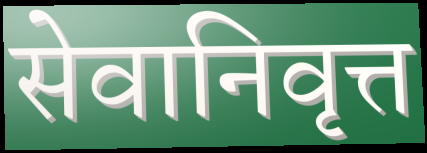
सेवानिवृत्त